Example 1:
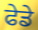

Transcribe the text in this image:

ਫੇਡੇ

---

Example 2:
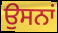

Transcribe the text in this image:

ਉਸਨਾਂ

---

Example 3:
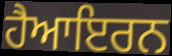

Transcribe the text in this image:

ਹੈਆਇਰਨ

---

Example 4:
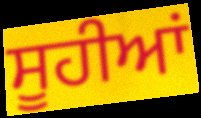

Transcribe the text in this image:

ਸੂਹੀਆਂ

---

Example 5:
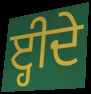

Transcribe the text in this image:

ੲ੍ਹੀਦੇ